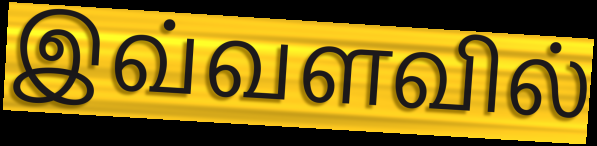
இவ்வளவில்